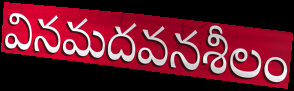
వినమదవనశీలం